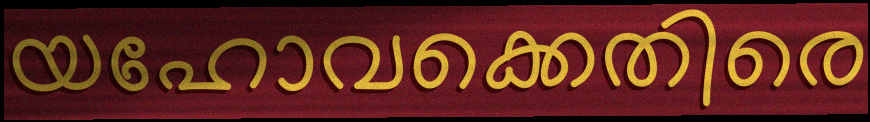
യഹോവക്കെതിരെ